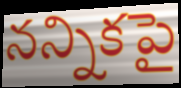
నన్నికపై